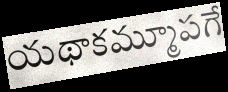
యథాకమ్మూపగే